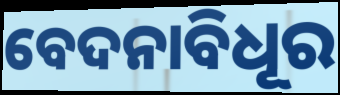
ବେଦନାବିଧୂର